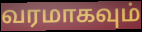
வரமாகவும்